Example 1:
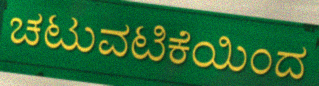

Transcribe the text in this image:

ಚಟುವಟಿಕೆಯಿಂದ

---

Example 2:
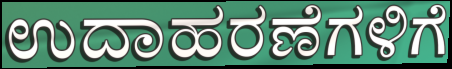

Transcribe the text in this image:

ಉದಾಹರಣೆಗಳಿಗೆ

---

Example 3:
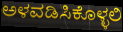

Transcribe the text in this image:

ಅಳವಡಿಸಿಕೊಳ್ಳಲಿ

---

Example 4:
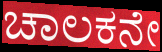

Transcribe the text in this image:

ಚಾಲಕನೇ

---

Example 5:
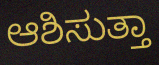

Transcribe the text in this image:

ಆಶಿಸುತ್ತಾ